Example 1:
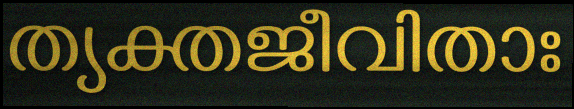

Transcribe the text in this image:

ത്യക്തജീവിതാഃ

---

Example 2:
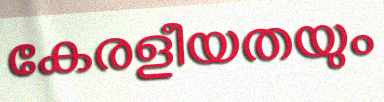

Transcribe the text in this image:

കേരളീയതയും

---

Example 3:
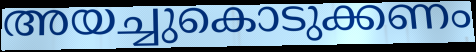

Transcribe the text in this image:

അയച്ചുകൊടുക്കണം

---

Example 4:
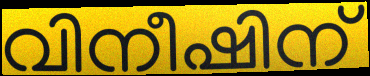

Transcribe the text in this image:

വിനീഷിന്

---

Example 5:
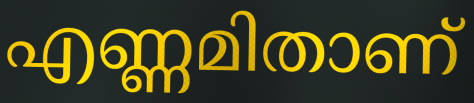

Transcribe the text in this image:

എണ്ണമിതാണ്